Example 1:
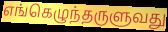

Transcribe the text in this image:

எங்கெழுந்தருளுவது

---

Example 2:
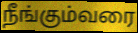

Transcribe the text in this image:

நீங்கும்வரை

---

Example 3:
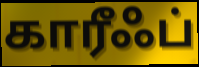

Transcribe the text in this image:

காரீஃப்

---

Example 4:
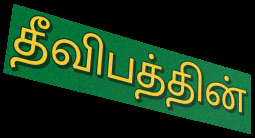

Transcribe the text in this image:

தீவிபத்தின்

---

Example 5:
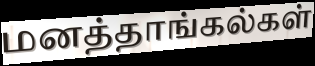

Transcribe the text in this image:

மனத்தாங்கல்கள்